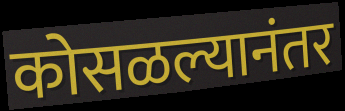
कोसळल्यानंतर